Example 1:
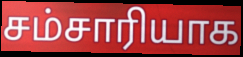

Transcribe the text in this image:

சம்சாரியாக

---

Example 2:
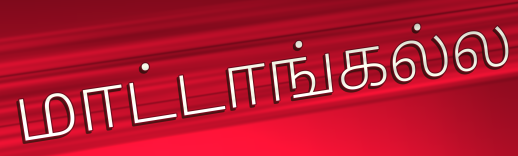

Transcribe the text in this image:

மாட்டாங்கல்ல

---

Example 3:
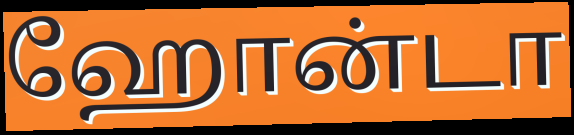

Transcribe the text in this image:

ஹோன்டா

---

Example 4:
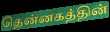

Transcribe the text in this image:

தென்னகத்தின்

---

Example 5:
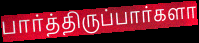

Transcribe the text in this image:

பார்த்திருப்பார்களா